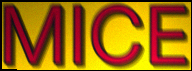
MICE